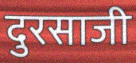
दुरसाजी